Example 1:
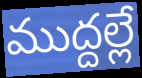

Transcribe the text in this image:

ముద్దల్లే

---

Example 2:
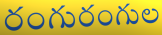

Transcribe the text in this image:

రంగురంగుల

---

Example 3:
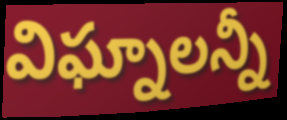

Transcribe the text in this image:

విఘ్నాలన్నీ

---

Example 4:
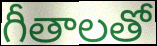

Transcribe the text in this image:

గీతాలతో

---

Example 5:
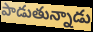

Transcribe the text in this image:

పాడుతున్నాడు